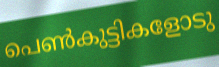
പെൺകുട്ടികളോടു